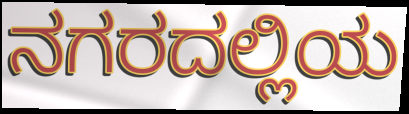
ನಗರದಲ್ಲಿಯ